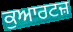
ਕੁਆਰਟਜ਼